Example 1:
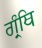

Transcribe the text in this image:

ਗ੍ਰੰਥਿ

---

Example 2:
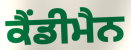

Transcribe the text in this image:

ਕੈਂਡੀਮੈਨ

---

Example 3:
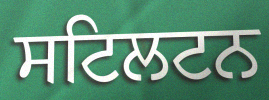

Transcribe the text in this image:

ਸਟਿਲਟਨ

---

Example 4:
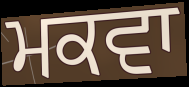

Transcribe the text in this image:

ਮਕਵਾ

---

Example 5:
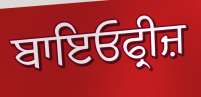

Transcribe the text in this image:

ਬਾਇਓਫ੍ਰੀਜ਼